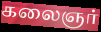
கலைஞர்